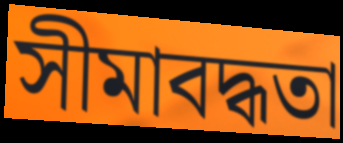
সীমাবদ্ধতা